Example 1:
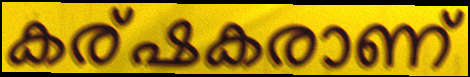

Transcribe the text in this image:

കര്ഷകരാണ്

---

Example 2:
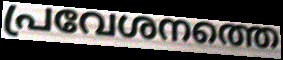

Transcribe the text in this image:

പ്രവേശനത്തെ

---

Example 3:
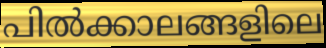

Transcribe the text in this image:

പിൽക്കാലങ്ങളിലെ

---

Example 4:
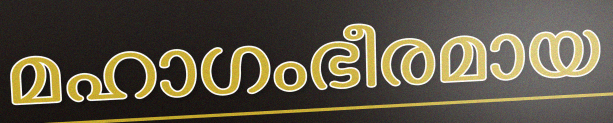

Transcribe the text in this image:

മഹാഗംഭീരമായ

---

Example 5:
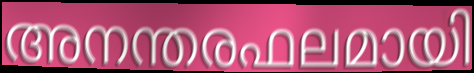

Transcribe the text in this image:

അനന്തരഫലമായി